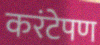
करंटेपण